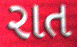
રાત